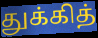
துக்கித்